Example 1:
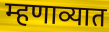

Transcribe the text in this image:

म्हणाव्यात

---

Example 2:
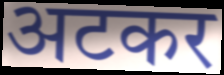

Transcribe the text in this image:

अटकर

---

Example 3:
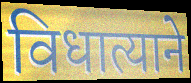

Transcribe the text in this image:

विधात्याने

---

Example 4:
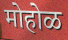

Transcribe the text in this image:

मोहोळ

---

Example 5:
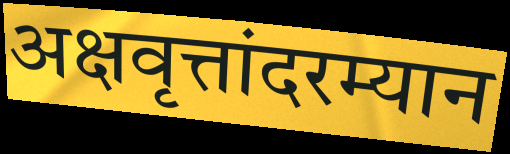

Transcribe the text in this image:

अक्षवृत्तांदरम्यान